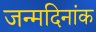
जन्मदिनांक